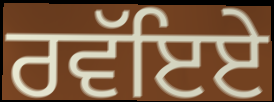
ਰਵੱਇਏ